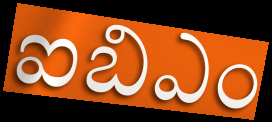
ఐబిఎం